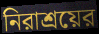
নিরাশ্রয়ের